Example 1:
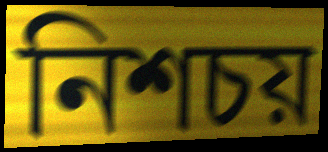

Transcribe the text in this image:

নিশচয়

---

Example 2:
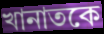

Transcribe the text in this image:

খানাতকে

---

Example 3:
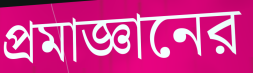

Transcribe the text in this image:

প্রমাজ্ঞানের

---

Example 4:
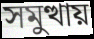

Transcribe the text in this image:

সমুত্থায়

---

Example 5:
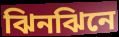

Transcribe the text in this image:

ঝিনঝিনে